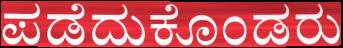
ಪಡೆದುಕೊಂಡರು